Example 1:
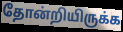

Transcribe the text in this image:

தோன்றியிருக்க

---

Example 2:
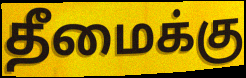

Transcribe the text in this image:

தீமைக்கு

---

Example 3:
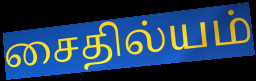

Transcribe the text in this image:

சைதில்யம்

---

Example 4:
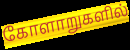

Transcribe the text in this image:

கோளாறுகளில்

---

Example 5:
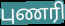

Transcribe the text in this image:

புணரி